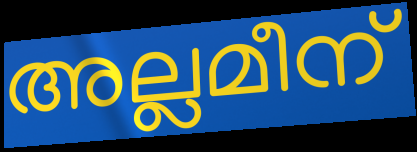
അല്ലമീന്